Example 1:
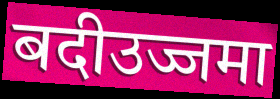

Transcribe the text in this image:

बदीउज्जमा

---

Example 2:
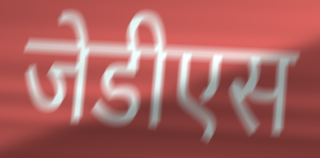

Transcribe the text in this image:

जेडीएस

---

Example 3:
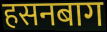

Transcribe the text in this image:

हसनबाग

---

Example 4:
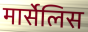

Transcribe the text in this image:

मार्सेलिस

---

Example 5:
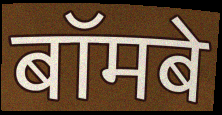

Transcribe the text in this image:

बॉमबे